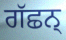
ਗੱਛਨ੍